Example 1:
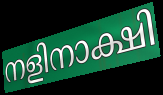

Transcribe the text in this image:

നളിനാക്ഷി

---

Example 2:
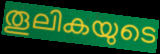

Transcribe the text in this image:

തൂലികയുടെ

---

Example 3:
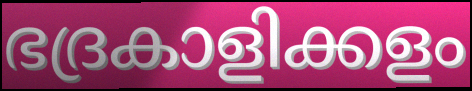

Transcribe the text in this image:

ഭദ്രകാളിക്കളം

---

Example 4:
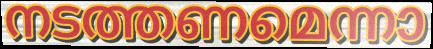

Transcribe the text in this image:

നടത്തണമെന്നാ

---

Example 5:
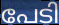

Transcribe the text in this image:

പേടി